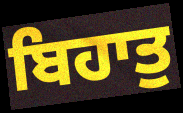
ਬਿਹਾਤੁ